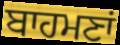
ਬਾਹਮਣਾਂ